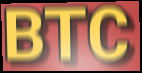
BTC